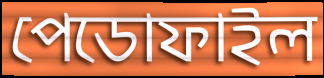
পেডোফাইল